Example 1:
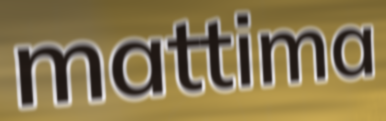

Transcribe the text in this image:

mattima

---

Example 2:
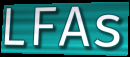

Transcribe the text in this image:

LFAs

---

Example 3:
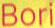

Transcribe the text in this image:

Bori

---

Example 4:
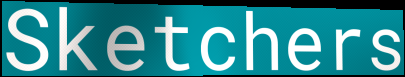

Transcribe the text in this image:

Sketchers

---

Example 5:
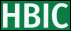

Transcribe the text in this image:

HBIC